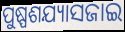
ପୁଷ୍ପଶଯ୍ୟାସଜାଇ